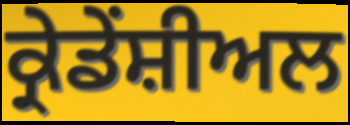
ਕ੍ਰੇਡੇਂਸ਼ੀਅਲ